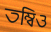
তম্বিও